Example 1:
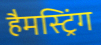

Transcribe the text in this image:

हैमस्ट्रिंग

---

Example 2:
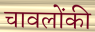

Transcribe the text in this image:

चावलोंकी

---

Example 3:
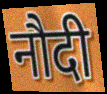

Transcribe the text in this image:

नौदी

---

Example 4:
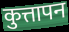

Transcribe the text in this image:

कुत्तापन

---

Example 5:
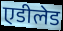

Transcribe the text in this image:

एडीलेड